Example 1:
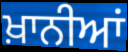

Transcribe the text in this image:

ਖ਼ਾਨੀਆਂ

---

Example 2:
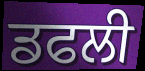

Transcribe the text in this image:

ਡਫਲੀ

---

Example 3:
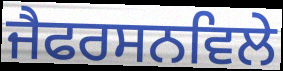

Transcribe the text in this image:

ਜੈਫਰਸਨਵਿਲੇ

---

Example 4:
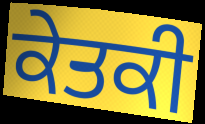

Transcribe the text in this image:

ਕੇਤਕੀ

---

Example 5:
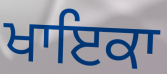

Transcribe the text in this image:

ਖਾਇਕਾ